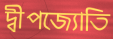
দ্বীপজ্যোতি